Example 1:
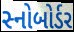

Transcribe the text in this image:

સ્નોબોર્ડર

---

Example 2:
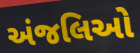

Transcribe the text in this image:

અંજલિઓ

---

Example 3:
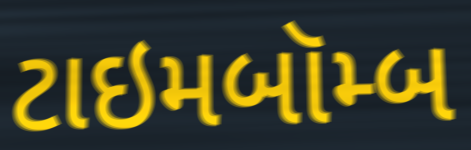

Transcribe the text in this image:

ટાઇમબૉમ્બ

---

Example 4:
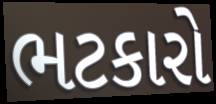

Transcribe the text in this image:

ભટકારો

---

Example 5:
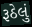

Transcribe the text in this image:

રૂઠેલું